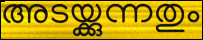
അടയ്ക്കുന്നതും